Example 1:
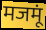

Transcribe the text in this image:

मजमूं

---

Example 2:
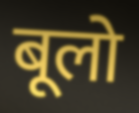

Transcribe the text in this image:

बूलो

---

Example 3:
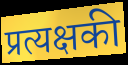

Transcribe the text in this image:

प्रत्यक्षकी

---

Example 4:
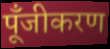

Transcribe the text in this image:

पूँजीकरण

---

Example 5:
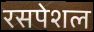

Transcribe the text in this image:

रसपेशल